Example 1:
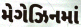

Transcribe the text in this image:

મેગેઝિનમાં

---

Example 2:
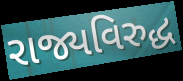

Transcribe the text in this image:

રાજ્યવિરુદ્ધ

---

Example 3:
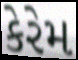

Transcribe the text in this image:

કેરેમ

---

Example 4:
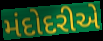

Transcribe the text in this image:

મંદોદરીએ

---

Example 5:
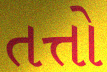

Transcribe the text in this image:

તત્તો